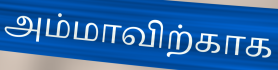
அம்மாவிற்காக